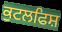
ਕੁਟਲਫਿਸ਼